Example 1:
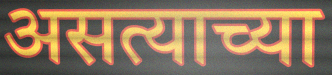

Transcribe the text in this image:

असत्याच्या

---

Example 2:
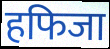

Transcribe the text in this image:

हफिजा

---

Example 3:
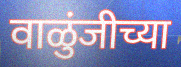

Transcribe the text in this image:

वाळुंजीच्या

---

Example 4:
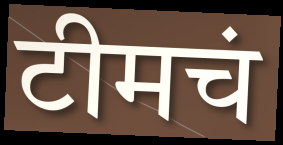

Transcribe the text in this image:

टीमचं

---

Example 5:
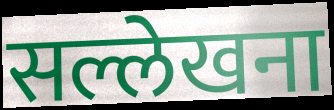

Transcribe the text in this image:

सल्लेखना